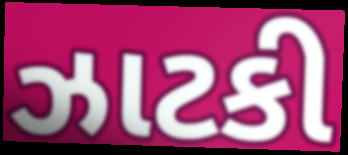
ઝાટકી